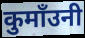
कुमाँउनी